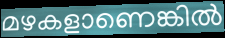
മഴകളാണെങ്കിൽ